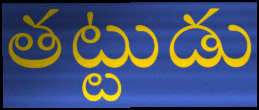
తట్టుడు